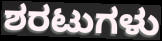
ಶರಟುಗಳು